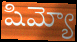
షిమ్యో